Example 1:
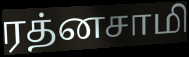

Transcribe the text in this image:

ரத்னசாமி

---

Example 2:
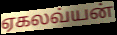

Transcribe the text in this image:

ஏகலவ்யன்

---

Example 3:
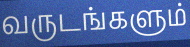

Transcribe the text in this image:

வருடங்களும்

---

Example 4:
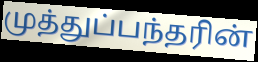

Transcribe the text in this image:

முத்துப்பந்தரின்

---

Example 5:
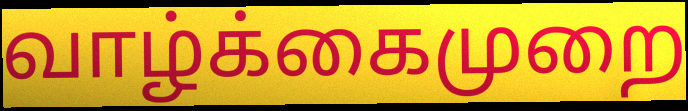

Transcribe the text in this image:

வாழ்க்கைமுறை